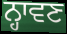
ਨ੍ਹਾਵਣ